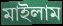
মাইলাম